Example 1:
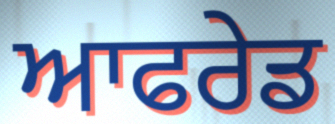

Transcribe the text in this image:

ਆਫਰੇਡ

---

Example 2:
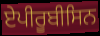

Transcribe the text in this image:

ਏਪੀਰੂਬੀਸਿਨ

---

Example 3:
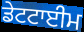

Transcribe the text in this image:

ਡੇਟਟਾਈਮ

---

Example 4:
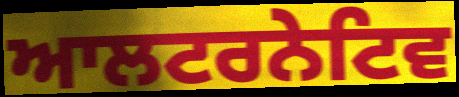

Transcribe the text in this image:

ਆਲਟਰਨੇਟਿਵ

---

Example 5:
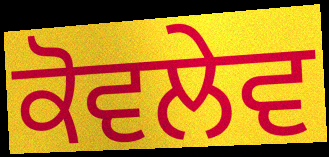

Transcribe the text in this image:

ਕੋਵਲੇਵ